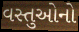
વસ્તુઓનો